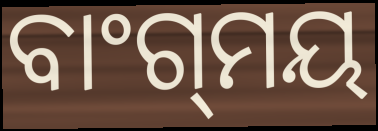
ବାଂଗ୍‌ମୟ